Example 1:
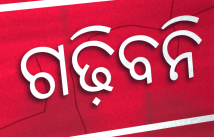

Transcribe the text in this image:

ଗଢ଼ିବନି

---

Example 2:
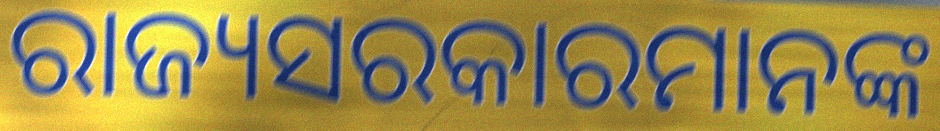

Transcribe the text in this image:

ରାଜ୍ୟସରକାରମାନଙ୍କ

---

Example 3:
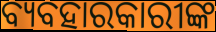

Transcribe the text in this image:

ବ୍ୟବହାରକାରୀଙ୍କ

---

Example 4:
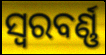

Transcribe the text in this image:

ସ୍ୱରବର୍ଣ୍ଣ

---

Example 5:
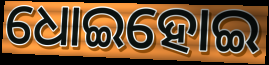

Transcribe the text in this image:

ଧୋଇହୋଇ